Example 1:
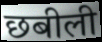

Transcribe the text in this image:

छबीली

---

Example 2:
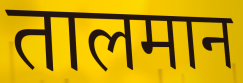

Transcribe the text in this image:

तालमान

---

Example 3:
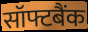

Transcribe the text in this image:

सॉफ्टबैंक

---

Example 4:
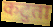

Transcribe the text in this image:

कटुता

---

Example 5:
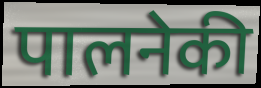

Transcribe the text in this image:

पालनेकी